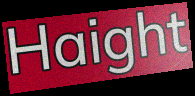
Haight